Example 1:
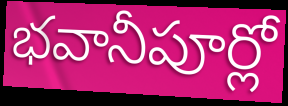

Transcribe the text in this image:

భవానీపూర్లో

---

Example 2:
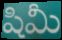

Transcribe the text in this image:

షిమీ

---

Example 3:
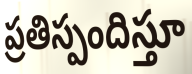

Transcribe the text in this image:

ప్రతిస్పందిస్తూ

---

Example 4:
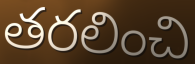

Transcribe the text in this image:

తరలించి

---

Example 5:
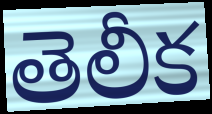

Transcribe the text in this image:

తెలీక